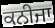
ਕਨੀਜਾ